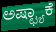
ಅಷ್ಟ್ಯಾಕೆ